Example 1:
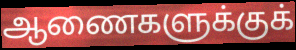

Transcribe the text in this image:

ஆணைகளுக்குக்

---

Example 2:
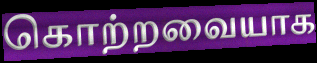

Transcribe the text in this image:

கொற்றவையாக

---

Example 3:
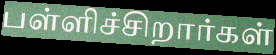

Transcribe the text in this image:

பள்ளிச்சிறார்கள்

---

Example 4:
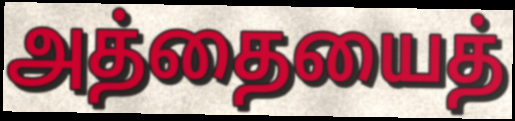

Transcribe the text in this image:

அத்தையைத்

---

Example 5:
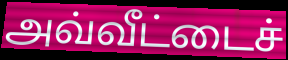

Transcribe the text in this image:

அவ்வீட்டைச்